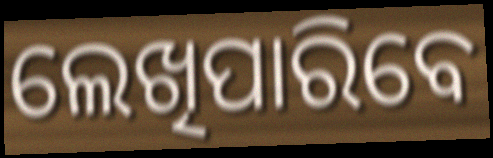
ଲେଖିପାରିବେ